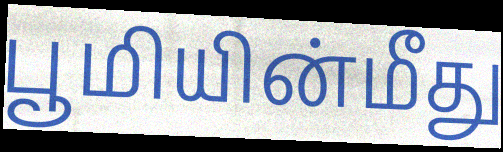
பூமியின்மீது